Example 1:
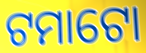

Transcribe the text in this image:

ଟମାଟୋ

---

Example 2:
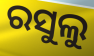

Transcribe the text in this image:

ରସୁଲୁ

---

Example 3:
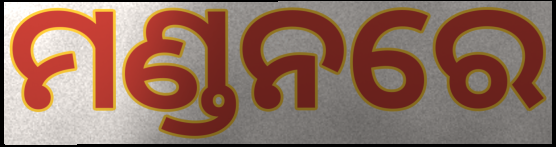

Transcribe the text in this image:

ମଣ୍ଡନରେ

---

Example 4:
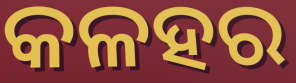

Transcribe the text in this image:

କଳହର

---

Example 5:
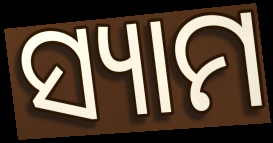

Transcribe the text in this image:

ସ୍ୟାମ